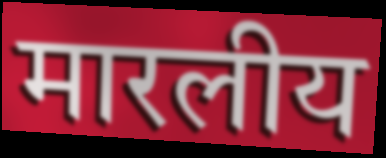
मारलीय